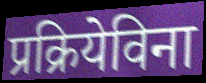
प्रक्रियेविना